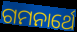
ଗମନାର୍ଥେ